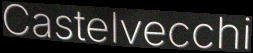
Castelvecchi